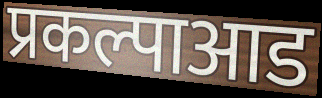
प्रकल्पाआड